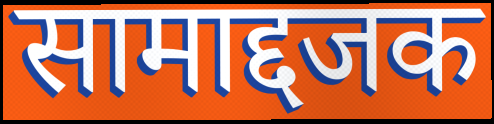
सामाद्दजक